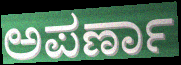
ಅಪರ್ಣಾ